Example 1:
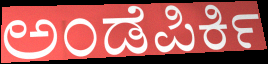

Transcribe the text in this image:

ಅಂಡೆಪಿರ್ಕಿ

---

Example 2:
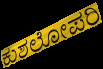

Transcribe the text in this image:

ಕುಶಲೋಪರಿ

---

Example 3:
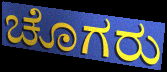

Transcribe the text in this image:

ಚೊಗರು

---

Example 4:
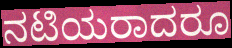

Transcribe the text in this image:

ನಟಿಯರಾದರೂ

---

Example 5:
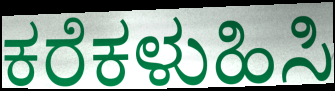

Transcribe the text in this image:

ಕರೆಕಳುಹಿಸಿ